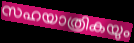
സഹയാത്രികയും